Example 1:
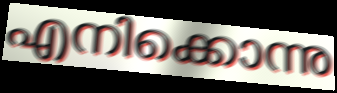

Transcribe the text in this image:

എനിക്കൊന്നു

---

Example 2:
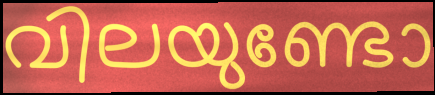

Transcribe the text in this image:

വിലയുണ്ടോ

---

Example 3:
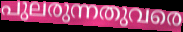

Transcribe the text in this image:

പുലരുന്നതുവരെ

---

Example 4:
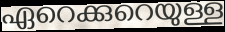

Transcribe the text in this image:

ഏറെക്കുറെയുള്ള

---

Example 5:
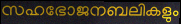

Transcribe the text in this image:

സഹഭോജനബലികളും